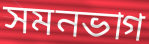
সমনভাগ